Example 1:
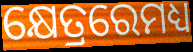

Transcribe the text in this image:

କ୍ଷେତ୍ରରେମଧ୍ୟ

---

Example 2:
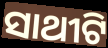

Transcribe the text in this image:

ସାଥୀଟି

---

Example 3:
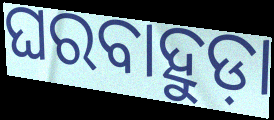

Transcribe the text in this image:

ଘରବାହୁଡ଼ା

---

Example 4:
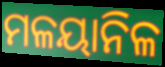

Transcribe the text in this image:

ମଳୟାନିଳ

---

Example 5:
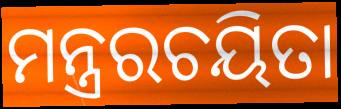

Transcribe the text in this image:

ମନ୍ତ୍ରରଚୟିତା